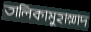
তালিকামুহাম্মাদ